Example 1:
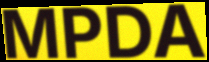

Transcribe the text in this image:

MPDA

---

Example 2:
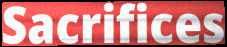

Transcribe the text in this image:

Sacrifices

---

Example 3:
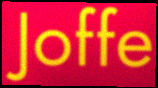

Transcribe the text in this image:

Joffe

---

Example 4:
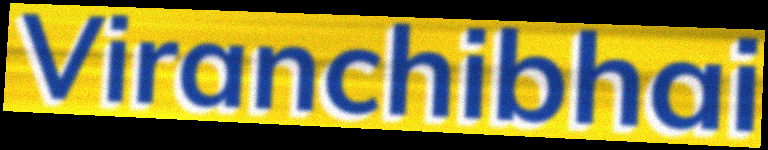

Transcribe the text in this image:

Viranchibhai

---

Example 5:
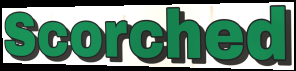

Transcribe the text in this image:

Scorched